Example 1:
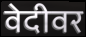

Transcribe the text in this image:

वेदीवर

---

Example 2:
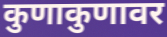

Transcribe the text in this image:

कुणाकुणावर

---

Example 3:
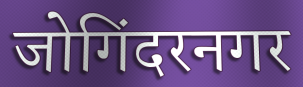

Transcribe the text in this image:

जोगिंदरनगर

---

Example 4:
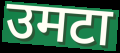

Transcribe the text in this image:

उमटा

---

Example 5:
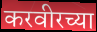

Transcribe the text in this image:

करवीरच्या